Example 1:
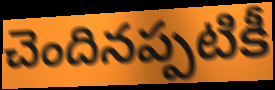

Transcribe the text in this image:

చెందినప్పటికీ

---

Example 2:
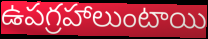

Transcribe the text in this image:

ఉపగ్రహాలుంటాయి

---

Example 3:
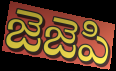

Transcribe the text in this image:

జెజెపి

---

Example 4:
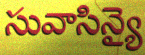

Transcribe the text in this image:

సువాసిన్యై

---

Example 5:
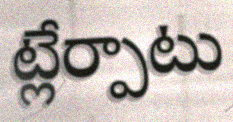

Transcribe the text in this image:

ట్లేర్పాటు